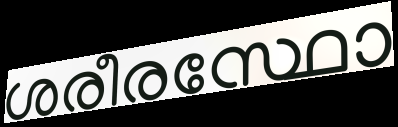
ശരീരസ്ഥോ